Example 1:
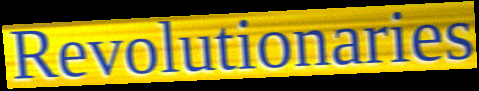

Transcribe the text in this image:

Revolutionaries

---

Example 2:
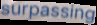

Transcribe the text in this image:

surpassing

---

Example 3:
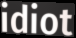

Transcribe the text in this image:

idiot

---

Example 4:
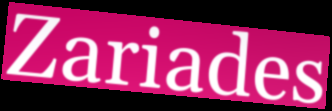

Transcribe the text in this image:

Zariades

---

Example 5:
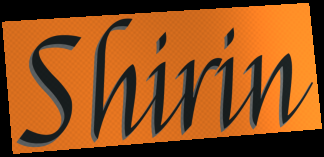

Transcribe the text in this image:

Shirin